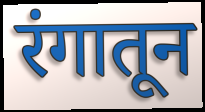
रंगातून